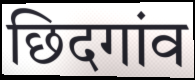
छिदगांव